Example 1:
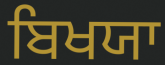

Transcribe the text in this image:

ਬਿਖਯਾ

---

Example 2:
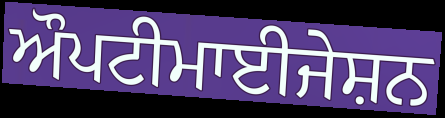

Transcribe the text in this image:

ਔਪਟੀਮਾਈਜੇਸ਼ਨ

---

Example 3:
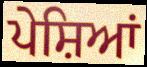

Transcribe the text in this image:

ਪੇਸ਼ਿਆਂ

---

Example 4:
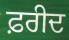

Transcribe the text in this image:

ਫ਼ਰੀਦ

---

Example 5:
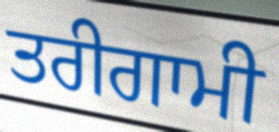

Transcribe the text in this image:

ਤਰੀਗਾਮੀ